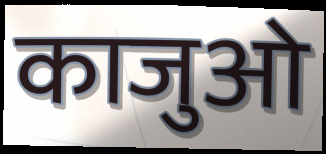
काजुओ